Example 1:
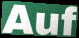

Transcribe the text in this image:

Auf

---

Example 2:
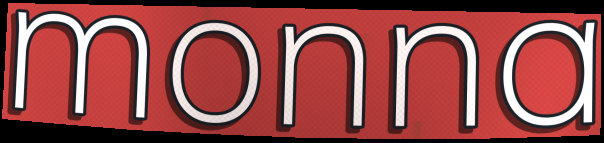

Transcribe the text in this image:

monna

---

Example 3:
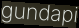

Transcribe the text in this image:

gundapi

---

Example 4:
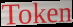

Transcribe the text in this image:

Token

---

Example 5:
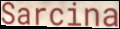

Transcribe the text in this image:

Sarcina